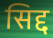
सिद्द